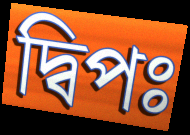
দ্বিপঃ